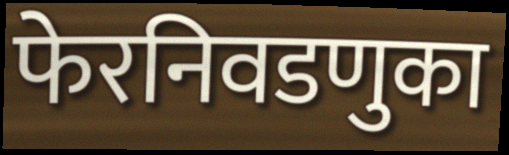
फेरनिवडणुका